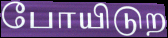
போயிடுற